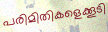
പരിമിതികളെക്കൂടി